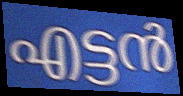
എട്ടൻ